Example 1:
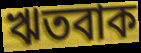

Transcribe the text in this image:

ঋতবাক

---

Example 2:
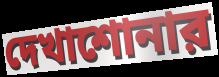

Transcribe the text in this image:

দেখাশোনার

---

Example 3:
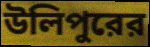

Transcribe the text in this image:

উলিপুরের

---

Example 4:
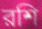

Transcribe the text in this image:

রশি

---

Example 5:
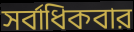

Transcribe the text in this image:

সর্বাধিকবার